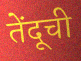
तेंदूची